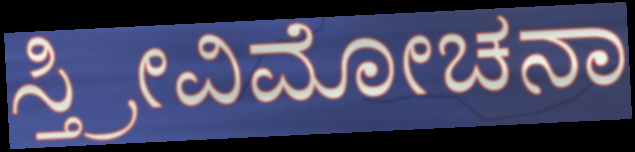
ಸ್ತ್ರೀವಿಮೋಚನಾ